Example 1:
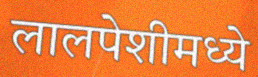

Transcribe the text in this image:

लालपेशीमध्ये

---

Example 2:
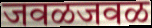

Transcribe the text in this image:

जवळजवळ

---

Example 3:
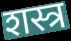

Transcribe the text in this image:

शस्त्र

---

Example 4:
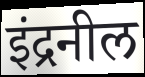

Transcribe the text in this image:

इंद्रनील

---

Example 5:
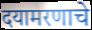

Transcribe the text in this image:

दयामरणाचे